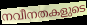
നവീനതകളുടെ